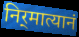
निर्मात्यानं